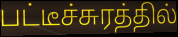
பட்டீச்சுரத்தில்